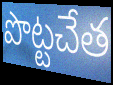
పొట్టచేత